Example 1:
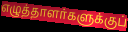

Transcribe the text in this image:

எழுத்தாளர்களுக்குப்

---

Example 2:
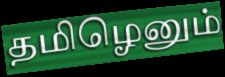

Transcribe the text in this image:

தமிழெனும்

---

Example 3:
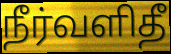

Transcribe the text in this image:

நீர்வளிதீ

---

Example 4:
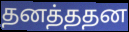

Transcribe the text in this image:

தனத்ததன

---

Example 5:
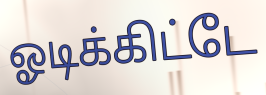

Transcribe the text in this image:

ஓடிக்கிட்டே